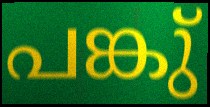
പങ്കു്